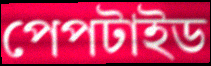
পেপটাইড